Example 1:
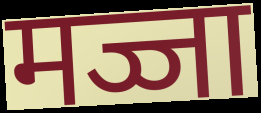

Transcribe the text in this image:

मज्जा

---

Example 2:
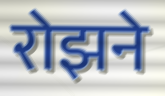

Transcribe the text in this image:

रोझने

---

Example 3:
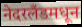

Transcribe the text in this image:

नेदरलँडमधून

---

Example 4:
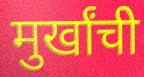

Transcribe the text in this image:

मुर्खांची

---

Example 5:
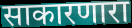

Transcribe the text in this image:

साकारणारा